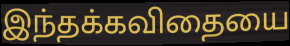
இந்தக்கவிதையை